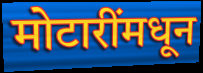
मोटारींमधून